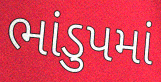
ભાંડુપમાં